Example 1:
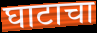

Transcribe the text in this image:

घाटाचा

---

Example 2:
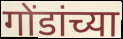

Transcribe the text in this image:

गोंडांच्या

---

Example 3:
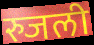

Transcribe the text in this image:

रुजली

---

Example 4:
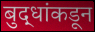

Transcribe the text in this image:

बुद्धांकडून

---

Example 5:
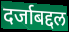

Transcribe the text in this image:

दर्जाबद्दल